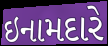
ઇનામદારે